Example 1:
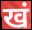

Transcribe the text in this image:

खं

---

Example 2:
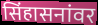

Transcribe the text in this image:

सिंहासनांवर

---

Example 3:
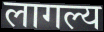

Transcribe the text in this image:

लागल्य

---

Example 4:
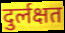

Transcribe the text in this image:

दुर्लक्षत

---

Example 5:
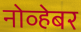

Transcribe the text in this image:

नोव्हेबर